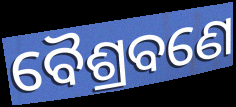
ବୈଶ୍ରବଣେ